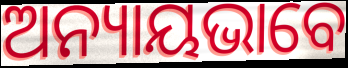
ଅନ୍ୟାୟଭାବେ